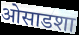
ओसाडशा